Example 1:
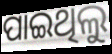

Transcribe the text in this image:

ପାଇଥିଲୁ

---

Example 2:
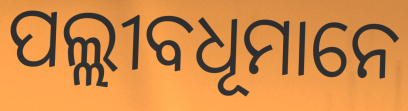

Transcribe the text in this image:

ପଲ୍ଲୀବଧୂମାନେ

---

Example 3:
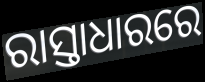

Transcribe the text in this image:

ରାସ୍ତାଧାରରେ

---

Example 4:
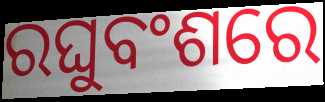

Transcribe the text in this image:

ରଘୁବଂଶରେ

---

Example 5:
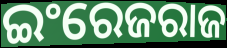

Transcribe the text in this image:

ଇଂରେଜରାଜ